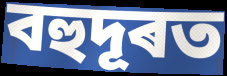
বহুদূৰত